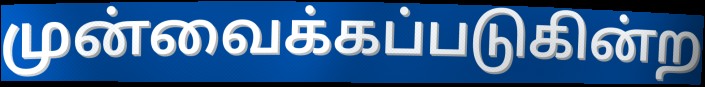
முன்வைக்கப்படுகின்ற